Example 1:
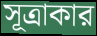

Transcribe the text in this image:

সূত্রাকার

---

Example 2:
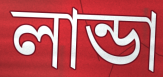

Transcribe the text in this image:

লান্ডা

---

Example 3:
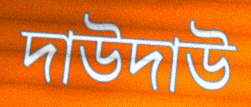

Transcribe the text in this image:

দাউদাউ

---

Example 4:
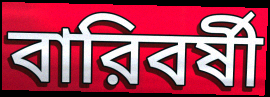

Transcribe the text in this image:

বারিবর্ষী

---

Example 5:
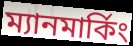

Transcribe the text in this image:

ম্যানমার্কিং